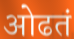
ओढतं